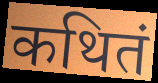
कथितं